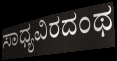
ಸಾಧ್ಯವಿರದಂಥ